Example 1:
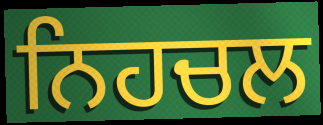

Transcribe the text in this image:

ਨਿਹਚਲ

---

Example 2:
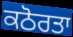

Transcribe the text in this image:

ਕਠੋਰਤਾ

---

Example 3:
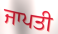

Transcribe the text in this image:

ਜਾਪਤੀ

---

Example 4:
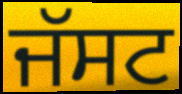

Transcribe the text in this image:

ਜੱਸਟ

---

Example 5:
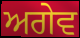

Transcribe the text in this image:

ਅਗੇਵ